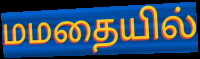
மமதையில்